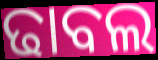
ଢାବଲ